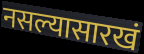
नसल्यासारखं